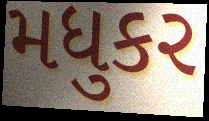
મધુકર